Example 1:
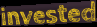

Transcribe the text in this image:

invested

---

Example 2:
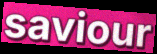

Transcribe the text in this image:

saviour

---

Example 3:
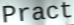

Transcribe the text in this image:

Pract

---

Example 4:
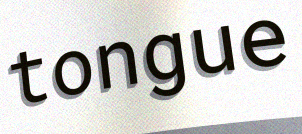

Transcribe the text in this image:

tongue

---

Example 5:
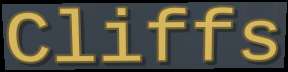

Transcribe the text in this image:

Cliffs